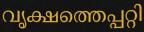
വൃക്ഷത്തെപ്പറ്റി